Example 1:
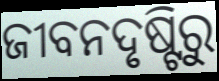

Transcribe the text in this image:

ଜୀବନଦୃଷ୍ଟିରୁ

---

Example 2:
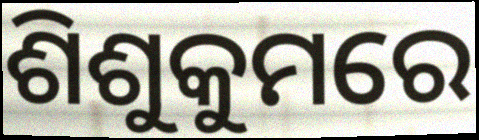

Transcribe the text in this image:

ଶିଶୁକୁମରେ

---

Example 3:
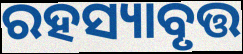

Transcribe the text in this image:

ରହସ୍ୟାବୃତ୍ତ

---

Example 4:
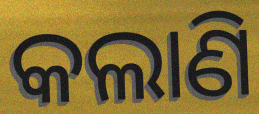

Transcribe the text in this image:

କଲାଣି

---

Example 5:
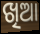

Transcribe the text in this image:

ଖିଆ